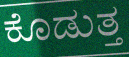
ಕೊಡುತ್ತ